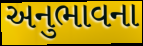
અનુભાવના